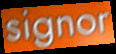
signor